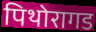
पिथोरागड